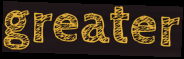
greater